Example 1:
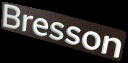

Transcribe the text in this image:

Bresson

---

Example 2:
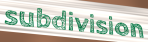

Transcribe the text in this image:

subdivision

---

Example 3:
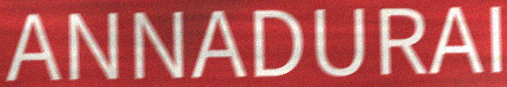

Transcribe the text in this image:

ANNADURAI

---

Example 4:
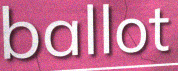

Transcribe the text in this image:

ballot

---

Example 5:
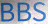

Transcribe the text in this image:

BBS